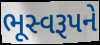
ભૂસ્વરૂપને